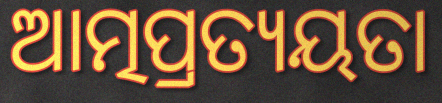
ଆତ୍ମପ୍ରତ୍ୟୟତା